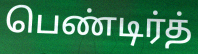
பெண்டிர்த்